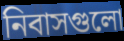
নিবাসগুলো